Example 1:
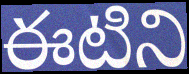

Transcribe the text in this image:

ఈటిని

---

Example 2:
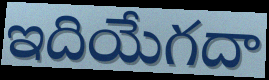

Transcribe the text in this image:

ఇదియేగదా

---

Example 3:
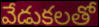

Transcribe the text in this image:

వేడుకలతో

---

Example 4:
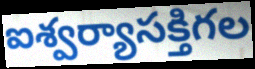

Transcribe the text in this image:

ఐశ్వర్యాసక్తిగల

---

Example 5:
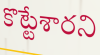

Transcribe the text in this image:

కొట్టేశారని